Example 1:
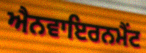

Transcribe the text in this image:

ਐਨਵਾਇਰਨਮੈਂਟ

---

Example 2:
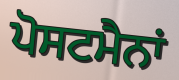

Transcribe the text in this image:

ਪੋਸਟਮੈਨਾਂ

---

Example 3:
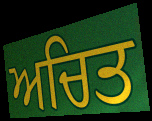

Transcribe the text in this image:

ਅਚਿਤ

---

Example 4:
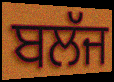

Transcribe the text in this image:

ਬਲੱਜ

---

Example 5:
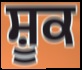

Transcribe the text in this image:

ਸ਼ੂਕ